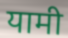
यामी